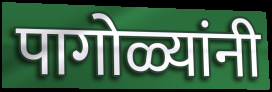
पागोळ्यांनी